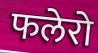
फलेरो